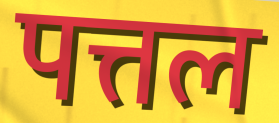
पत्तल